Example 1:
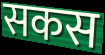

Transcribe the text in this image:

सकस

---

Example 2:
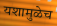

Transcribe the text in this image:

यशामुळेच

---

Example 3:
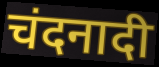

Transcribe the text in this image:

चंदनादी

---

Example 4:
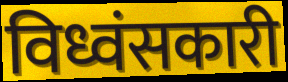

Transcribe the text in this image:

विध्वंसकारी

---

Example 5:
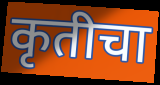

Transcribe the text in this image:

कृतीचा